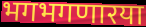
भगभगणारया